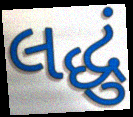
લદ્ધું